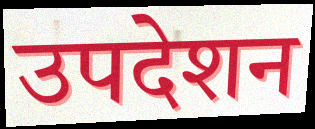
उपदेशन